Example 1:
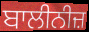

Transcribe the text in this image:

ਬਾਲੀਨੀਜ਼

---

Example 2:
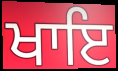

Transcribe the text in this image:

ਖਾਇ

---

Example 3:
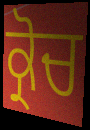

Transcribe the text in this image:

ਕ੍ਰੋਚ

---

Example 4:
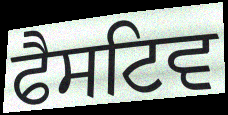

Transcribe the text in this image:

ਫੈਸਟਿਵ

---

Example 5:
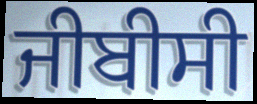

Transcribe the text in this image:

ਜੀਬੀਸੀ